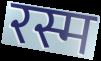
रस्म